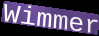
Wimmer